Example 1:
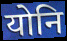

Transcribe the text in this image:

योनि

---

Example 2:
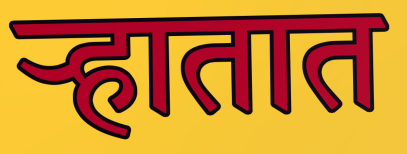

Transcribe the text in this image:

ऱ्हातात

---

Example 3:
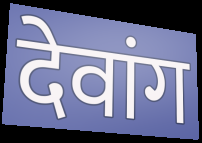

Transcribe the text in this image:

देवांग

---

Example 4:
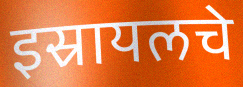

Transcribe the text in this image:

इस्रायलचे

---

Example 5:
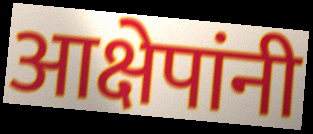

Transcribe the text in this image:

आक्षेपांनी